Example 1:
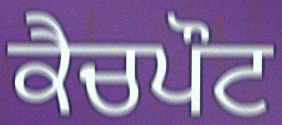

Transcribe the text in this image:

ਕੈਚਪੌਟ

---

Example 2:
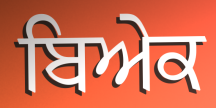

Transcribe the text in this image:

ਬਿਅੇਕ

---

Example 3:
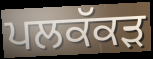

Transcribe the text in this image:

ਪਲਕੱਕੜ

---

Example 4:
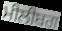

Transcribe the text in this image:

ਮੀਲੀਬਗ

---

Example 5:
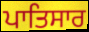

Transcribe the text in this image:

ਪਾਤਿਸਾਰ